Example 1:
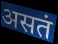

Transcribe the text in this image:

असतं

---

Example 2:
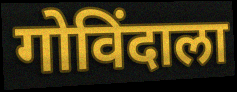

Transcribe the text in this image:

गोविंदाला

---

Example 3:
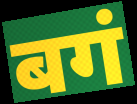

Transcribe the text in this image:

बगं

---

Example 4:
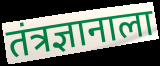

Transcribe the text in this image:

तंत्रज्ञानाला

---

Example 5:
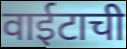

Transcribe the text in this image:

वाईटाची